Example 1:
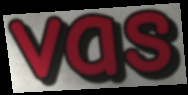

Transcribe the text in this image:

vas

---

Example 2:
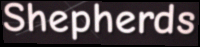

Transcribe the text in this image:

Shepherds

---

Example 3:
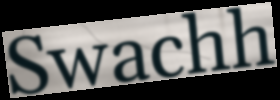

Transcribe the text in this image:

Swachh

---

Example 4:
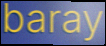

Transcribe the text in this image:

baray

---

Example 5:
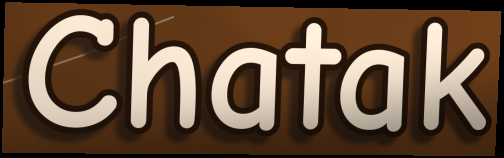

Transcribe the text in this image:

Chatak